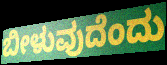
ಬೀಳುವುದೆಂದು